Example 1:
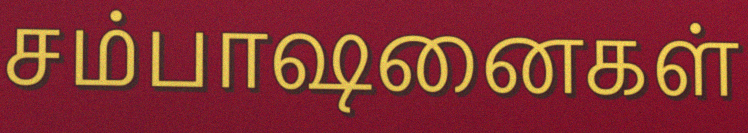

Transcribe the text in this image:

சம்பாஷனைகள்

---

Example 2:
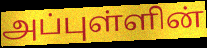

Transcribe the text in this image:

அப்புள்ளின்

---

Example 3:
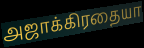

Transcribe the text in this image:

அஜாக்கிரதையா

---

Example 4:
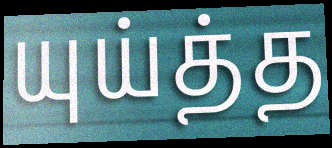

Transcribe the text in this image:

யுய்த்த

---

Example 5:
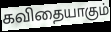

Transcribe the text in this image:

கவிதையாகும்